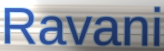
Ravani